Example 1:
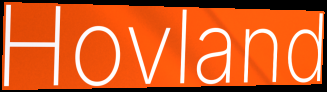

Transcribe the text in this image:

Hovland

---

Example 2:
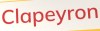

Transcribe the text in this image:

Clapeyron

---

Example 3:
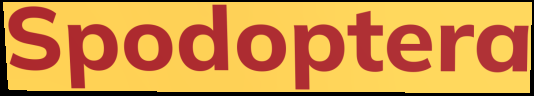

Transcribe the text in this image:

Spodoptera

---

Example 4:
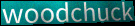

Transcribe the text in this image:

woodchuck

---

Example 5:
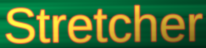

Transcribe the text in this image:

Stretcher